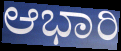
ಆಭಾರಿ